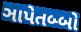
ઞાપેતબ્બો